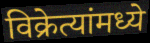
विक्रेत्यांमध्ये